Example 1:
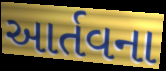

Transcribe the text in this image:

આર્તવના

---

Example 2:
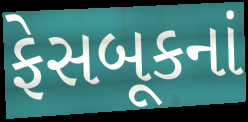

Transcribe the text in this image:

ફેસબૂકનાં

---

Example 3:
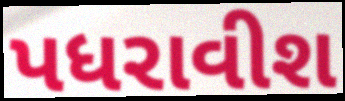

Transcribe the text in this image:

પધરાવીશ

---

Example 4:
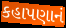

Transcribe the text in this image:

કહાપણાનં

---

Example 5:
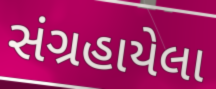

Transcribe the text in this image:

સંગ્રહાયેલા